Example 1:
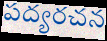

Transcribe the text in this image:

పద్యరచన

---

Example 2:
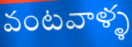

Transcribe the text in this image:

వంటవాళ్ళ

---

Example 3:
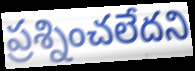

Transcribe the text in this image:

ప్రశ్నించలేదని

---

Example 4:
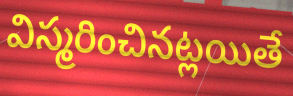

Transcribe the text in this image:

విస్మరించినట్లయితే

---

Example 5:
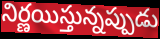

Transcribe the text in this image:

నిర్ణయిస్తున్నప్పుడు